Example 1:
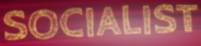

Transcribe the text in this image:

SOCIALIST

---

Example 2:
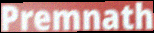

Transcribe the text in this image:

Premnath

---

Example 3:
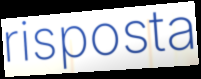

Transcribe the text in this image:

risposta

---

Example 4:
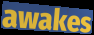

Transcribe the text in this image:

awakes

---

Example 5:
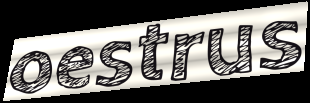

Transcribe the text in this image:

oestrus